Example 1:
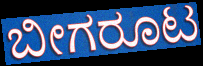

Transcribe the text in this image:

ಬೀಗರೂಟ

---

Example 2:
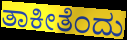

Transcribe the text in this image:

ತಾಕೀತೆಂದು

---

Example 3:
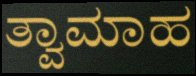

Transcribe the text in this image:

ತ್ವಾಮಾಹ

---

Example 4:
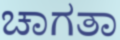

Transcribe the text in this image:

ಚಾಗತಾ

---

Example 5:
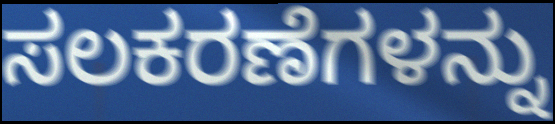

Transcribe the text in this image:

ಸಲಕರಣೆಗಳನ್ನು